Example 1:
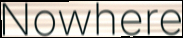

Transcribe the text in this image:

Nowhere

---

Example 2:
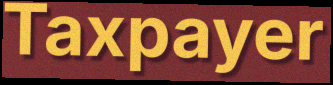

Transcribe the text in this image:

Taxpayer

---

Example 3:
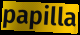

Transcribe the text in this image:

papilla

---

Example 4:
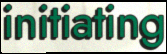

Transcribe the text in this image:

initiating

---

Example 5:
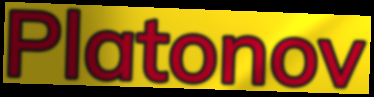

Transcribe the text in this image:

Platonov